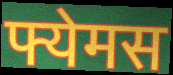
फ्येमस